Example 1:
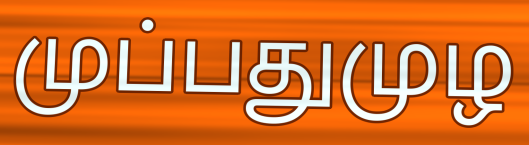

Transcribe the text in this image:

முப்பதுமுழ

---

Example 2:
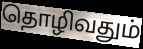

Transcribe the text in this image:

தொழிவதும்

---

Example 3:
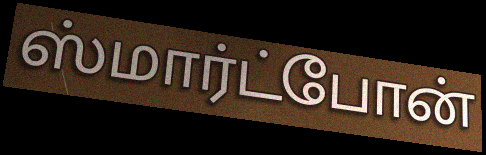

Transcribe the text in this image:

ஸ்மார்ட்போன்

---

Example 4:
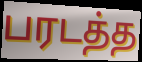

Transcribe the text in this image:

பரடத்த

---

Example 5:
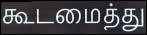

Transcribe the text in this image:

கூடமைத்து